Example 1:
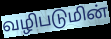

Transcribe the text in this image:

வழிபடுமின்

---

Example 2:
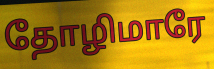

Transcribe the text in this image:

தோழிமாரே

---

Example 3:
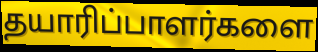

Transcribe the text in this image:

தயாரிப்பாளர்களை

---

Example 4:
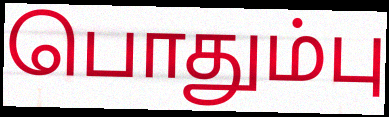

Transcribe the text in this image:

பொதும்பு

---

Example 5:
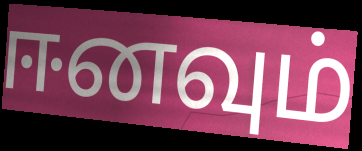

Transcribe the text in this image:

ஈனவும்